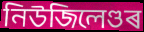
নিউজিলেণ্ডৰ